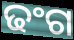
ଢଂଗ